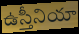
ఉస్తీనియా